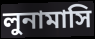
লুনামাসি